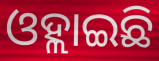
ଓହ୍ଲାଇଛି